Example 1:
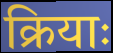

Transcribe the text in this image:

क्रियाः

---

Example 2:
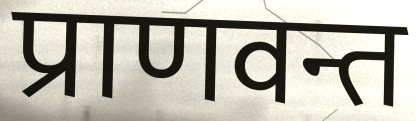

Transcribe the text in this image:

प्राणवन्त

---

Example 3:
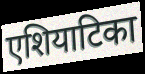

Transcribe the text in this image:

एशियाटिका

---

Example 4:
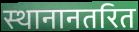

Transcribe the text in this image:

स्थानानतरित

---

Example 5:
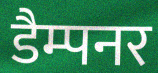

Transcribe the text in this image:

डैम्पनर